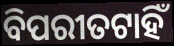
ବିପରୀତଟାହିଁ